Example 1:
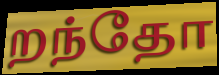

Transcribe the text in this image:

றந்தோ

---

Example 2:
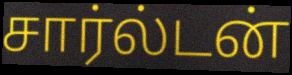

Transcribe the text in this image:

சார்ல்டன்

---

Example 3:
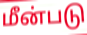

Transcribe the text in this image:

மீன்படு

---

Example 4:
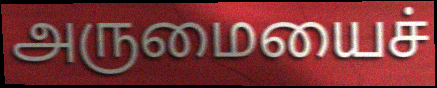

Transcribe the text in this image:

அருமையைச்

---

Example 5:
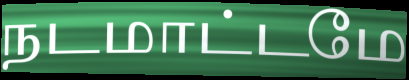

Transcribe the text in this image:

நடமாட்டமே